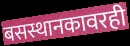
बसस्थानकावरही